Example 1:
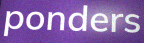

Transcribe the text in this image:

ponders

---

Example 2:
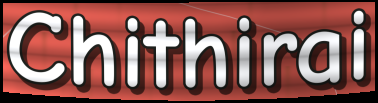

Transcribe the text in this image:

Chithirai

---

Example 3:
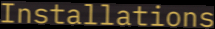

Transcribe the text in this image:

Installations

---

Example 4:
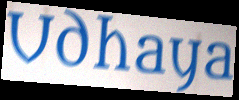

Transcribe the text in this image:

Udhaya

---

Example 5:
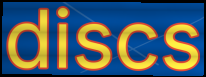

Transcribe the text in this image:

discs